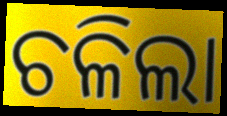
ଚଳିଲା